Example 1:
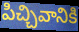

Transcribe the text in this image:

పిచ్చివానికి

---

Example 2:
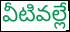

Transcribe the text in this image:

వీటివల్లే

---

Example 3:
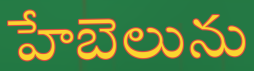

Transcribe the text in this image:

హేబెలును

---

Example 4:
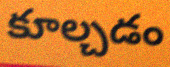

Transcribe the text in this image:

కూల్చడం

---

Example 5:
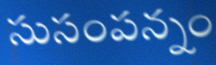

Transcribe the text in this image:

సుసంపన్నం